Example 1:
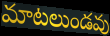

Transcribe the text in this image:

మాటలుండవు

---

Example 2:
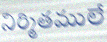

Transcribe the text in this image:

నిర్మితములే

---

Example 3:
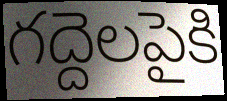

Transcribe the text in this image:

గద్దెలపైకి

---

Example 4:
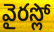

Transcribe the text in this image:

వైరస్లో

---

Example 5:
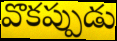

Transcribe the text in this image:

వొకప్పుడు